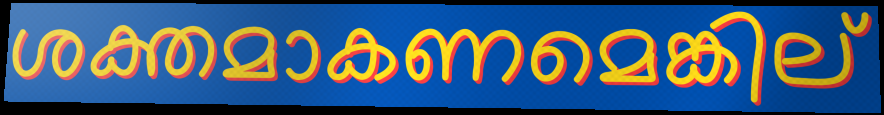
ശക്തമാകണമെങ്കില്